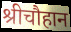
श्रीचौहान